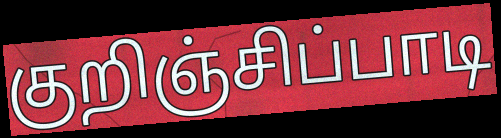
குறிஞ்சிப்பாடி